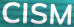
CISM